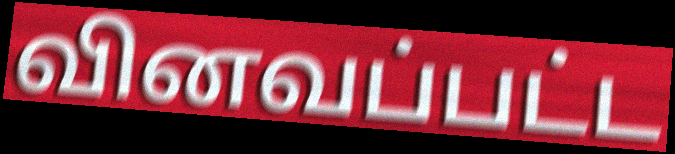
வினவப்பட்ட